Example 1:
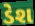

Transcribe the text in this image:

ડેશ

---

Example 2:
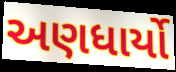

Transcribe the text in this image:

અણધાર્યો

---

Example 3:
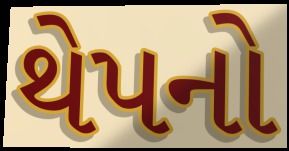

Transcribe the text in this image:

થેપનો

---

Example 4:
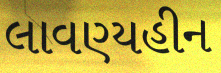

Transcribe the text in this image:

લાવણ્યહીન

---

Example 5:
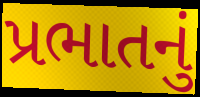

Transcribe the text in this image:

પ્રભાતનું